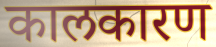
कालकारण